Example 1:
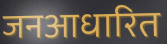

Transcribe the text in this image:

जनआधारित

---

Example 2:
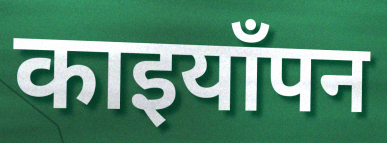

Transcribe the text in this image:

काइयाँपन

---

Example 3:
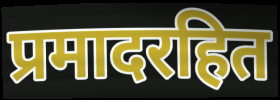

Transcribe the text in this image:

प्रमादरहित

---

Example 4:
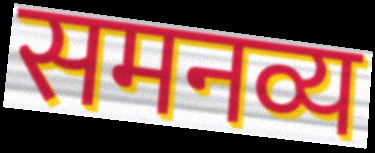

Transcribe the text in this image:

समनव्य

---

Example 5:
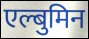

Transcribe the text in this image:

एल्बुमिन